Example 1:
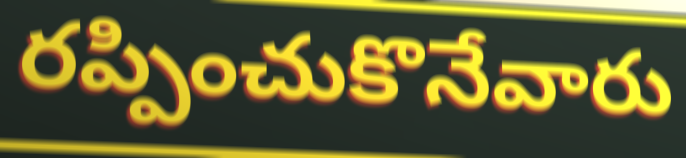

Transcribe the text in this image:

రప్పించుకొనేవారు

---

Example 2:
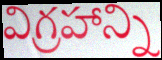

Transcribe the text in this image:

విగ్రహాన్ని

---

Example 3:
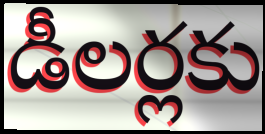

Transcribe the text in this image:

డీలర్లకు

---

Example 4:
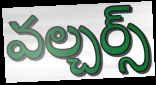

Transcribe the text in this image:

వల్చర్స్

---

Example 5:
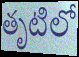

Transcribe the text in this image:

తృటిలో